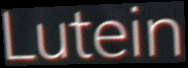
Lutein